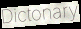
Dictonary